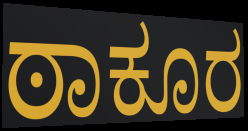
ಠಾಕೂರ